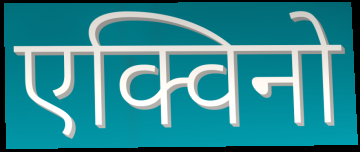
एक्विनो